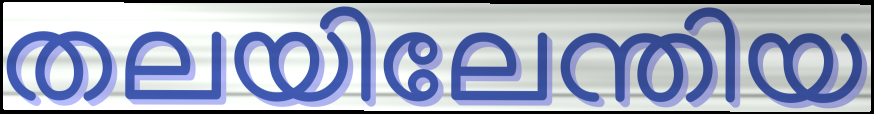
തലയിലേന്തിയ